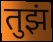
तुझं